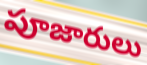
పూజారులు